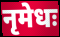
नृमेधः